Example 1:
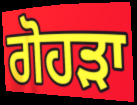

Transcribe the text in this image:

ਗੋਹੜਾ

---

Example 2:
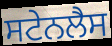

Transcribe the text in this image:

ਸਟੇਨਲੈਸ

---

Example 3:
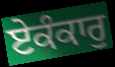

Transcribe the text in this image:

ਏਕੰਕਾਰੁ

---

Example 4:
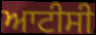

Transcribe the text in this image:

ਆਟੀਸੀ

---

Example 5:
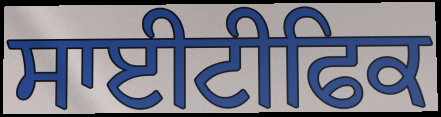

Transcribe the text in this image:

ਸਾਈਟੀਫਿਕ